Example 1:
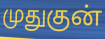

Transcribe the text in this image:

முதுகுன்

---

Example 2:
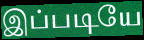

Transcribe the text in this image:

இப்படியே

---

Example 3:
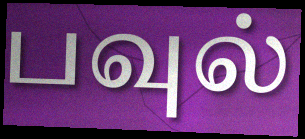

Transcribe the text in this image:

பவுல்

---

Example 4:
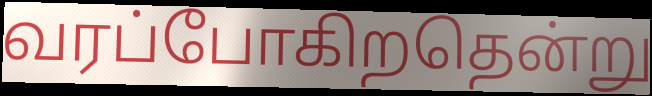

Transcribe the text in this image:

வரப்போகிறதென்று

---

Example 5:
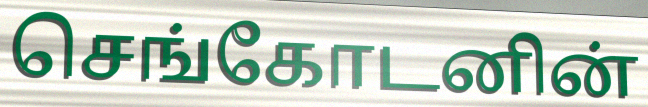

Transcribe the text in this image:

செங்கோடனின்